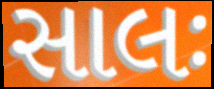
સાલઃ